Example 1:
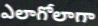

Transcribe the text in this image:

ఎలాగోలాగా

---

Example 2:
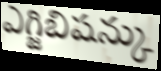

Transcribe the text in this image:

ఎగ్జిబిషన్కు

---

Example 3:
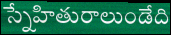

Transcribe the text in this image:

స్నేహితురాలుండేది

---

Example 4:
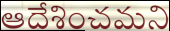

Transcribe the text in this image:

ఆదేశించమని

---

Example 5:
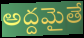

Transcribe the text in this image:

అద్దమైతే